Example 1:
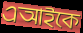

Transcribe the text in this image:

এআইকে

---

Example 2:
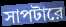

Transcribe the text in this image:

সাপটারে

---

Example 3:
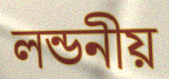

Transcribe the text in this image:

লন্ডনীয়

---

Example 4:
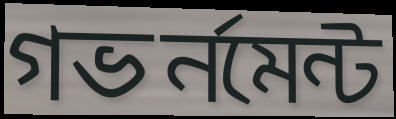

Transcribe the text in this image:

গভর্নমেন্ট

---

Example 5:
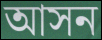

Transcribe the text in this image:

আসন